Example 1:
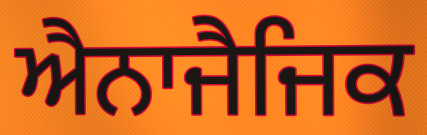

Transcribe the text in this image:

ਐਨਾਜੈਜਿਕ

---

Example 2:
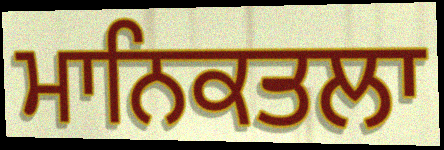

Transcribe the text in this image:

ਮਾਨਿਕਤਲਾ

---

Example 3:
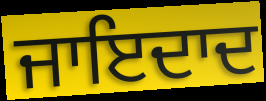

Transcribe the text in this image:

ਜਾਇਦਾਦ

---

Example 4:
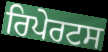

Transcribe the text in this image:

ਰਿਪੇਰਟਸ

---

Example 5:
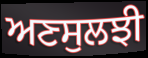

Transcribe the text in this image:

ਅਣਸੁਲਝੀ